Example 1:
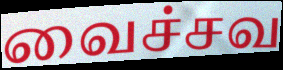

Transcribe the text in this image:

வைச்சவ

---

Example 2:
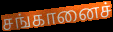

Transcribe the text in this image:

சங்கானைச்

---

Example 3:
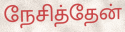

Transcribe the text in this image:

நேசித்தேன்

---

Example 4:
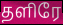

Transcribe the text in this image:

தளிரே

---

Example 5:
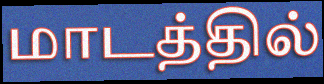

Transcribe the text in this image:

மாடத்தில்